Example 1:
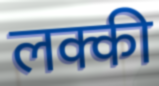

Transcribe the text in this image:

लक्की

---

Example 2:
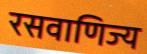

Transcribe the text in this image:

रसवाणिज्य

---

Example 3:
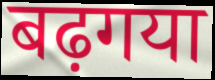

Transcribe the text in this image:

बढ़गया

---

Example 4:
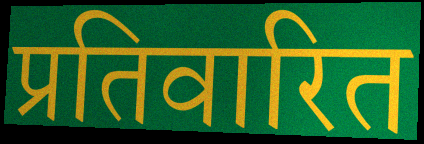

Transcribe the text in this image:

प्रतिवारित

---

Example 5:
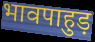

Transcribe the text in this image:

भावपाहुड़